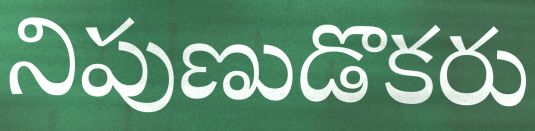
నిపుణుడొకరు